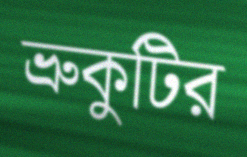
ভ্রুকুটির